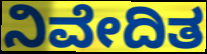
ನಿವೇದಿತ